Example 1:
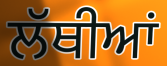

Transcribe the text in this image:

ਲੱਥੀਆਂ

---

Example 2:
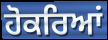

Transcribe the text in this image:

ਹੋਕਰਿਆਂ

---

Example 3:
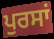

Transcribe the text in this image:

ਪੁਰਸਾਂ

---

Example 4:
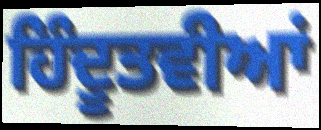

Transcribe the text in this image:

ਹਿੰਦੂਤਵੀਆਂ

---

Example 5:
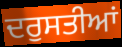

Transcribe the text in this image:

ਦਰੁਸਤੀਆਂ